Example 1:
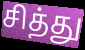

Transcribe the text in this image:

சித்து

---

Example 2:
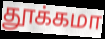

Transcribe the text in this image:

தூக்கமா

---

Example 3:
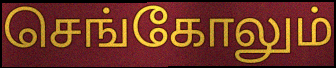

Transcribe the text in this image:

செங்கோலும்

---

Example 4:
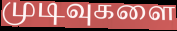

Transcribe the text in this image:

முடிவுகளை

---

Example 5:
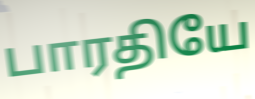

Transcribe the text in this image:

பாரதியே